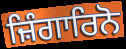
ਜ਼ਿੰਗਾਰਿਨੋ